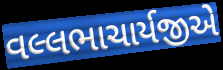
વલ્લભાચાર્યજીએ